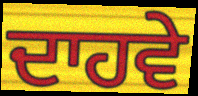
ਦਾਹਵੇ